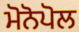
ਮੋਨੋਪੋਲ